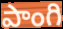
పాంగి